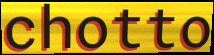
chotto